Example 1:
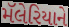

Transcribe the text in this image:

મૅલેરિયાને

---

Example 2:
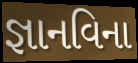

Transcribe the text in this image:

જ્ઞાનવિના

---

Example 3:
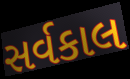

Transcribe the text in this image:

સર્વકાલ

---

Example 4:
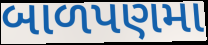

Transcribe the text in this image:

બાળપણમા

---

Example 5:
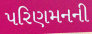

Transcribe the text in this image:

પરિણમનની